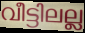
വീട്ടിലല്ല